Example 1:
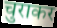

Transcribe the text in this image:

चुराकर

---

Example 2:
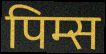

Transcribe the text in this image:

पिम्स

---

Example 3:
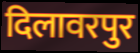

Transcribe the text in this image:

दिलावरपुर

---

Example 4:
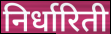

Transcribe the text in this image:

निर्धारिती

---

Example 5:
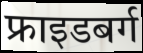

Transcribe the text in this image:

फ्राइडबर्ग